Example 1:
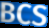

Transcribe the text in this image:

BCS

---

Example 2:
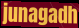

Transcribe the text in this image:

junagadh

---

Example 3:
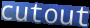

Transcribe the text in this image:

cutout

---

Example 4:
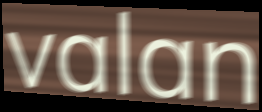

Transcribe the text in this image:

valan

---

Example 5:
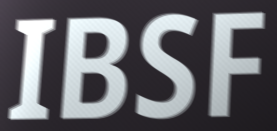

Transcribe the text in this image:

IBSF